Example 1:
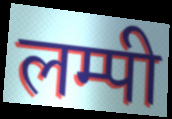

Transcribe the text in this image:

लम्पी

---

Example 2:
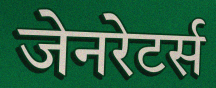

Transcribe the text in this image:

जेनरेटर्स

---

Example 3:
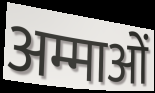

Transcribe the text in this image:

अम्माओं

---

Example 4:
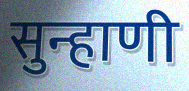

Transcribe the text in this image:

सुन्हाणी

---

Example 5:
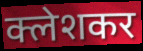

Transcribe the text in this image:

क्लेशकर